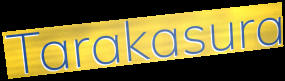
Tarakasura